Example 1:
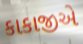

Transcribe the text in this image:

કાકાજીએ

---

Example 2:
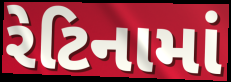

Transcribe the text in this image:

રેટિનામાં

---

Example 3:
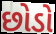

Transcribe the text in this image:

છોડો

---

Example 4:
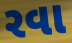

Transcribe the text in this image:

રવા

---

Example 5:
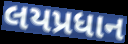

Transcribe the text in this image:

લયપ્રધાન